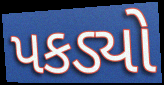
પકડ્યો